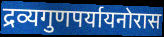
द्रव्यगुणपर्यायनोरास